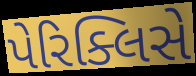
પેરિક્લિસે